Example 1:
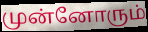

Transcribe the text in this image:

முன்னோரும்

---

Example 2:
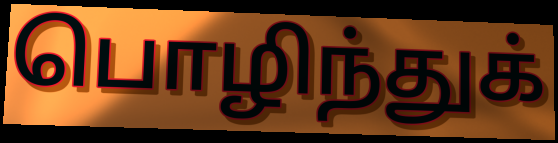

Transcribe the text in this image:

பொழிந்துக்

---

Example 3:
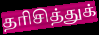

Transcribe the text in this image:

தரிசித்துக்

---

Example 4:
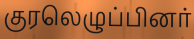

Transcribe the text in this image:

குரலெழுப்பினர்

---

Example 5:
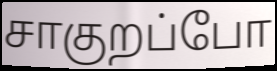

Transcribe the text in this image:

சாகுறப்போ